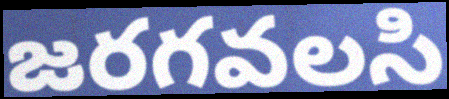
జరగవలసి